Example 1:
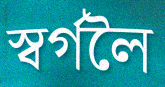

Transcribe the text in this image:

স্বৰ্গলৈ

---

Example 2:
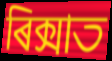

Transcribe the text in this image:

ৰিক্সাত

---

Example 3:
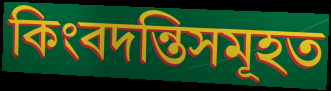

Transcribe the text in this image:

কিংবদন্তিসমূহত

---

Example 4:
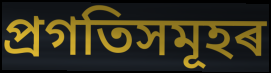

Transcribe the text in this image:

প্ৰগতিসমূহৰ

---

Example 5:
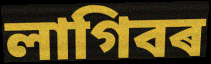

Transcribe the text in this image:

লাগিবৰ